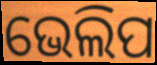
ଭେଲିପ